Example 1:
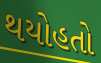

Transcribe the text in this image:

થયોહતો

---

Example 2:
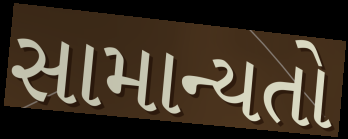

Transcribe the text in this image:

સામાન્યતો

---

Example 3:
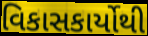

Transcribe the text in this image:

વિકાસકાર્યોથી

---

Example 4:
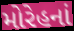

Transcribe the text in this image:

મોરેહનાં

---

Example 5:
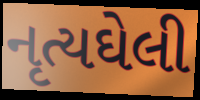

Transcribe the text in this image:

નૃત્યઘેલી